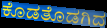
ಕೊಡತೊಡಗಿದ